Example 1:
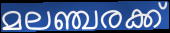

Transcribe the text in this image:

മലഞ്ചരക്ക്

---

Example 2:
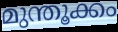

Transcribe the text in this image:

മുന്തൂക്കം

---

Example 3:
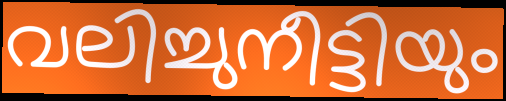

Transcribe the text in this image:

വലിച്ചുനീട്ടിയും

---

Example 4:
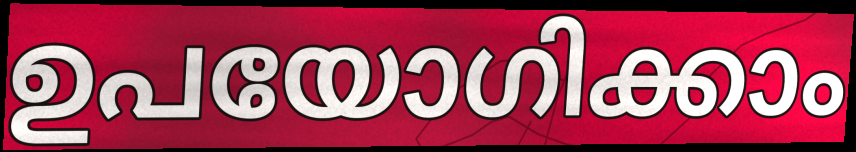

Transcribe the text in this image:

ഉപയോഗിക്കാം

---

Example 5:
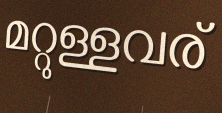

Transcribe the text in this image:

മറ്റുള്ളവര്